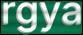
rgya